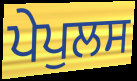
ਪੇਪੁਲਸ